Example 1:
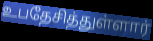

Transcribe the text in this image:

உபதேசித்துள்ளார்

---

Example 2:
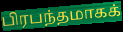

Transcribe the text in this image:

பிரபந்தமாகக்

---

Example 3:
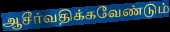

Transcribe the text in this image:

ஆசீர்வதிக்கவேண்டும்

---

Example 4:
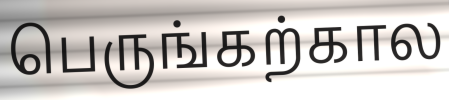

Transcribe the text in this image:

பெருங்கற்கால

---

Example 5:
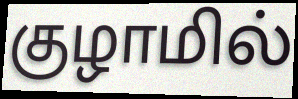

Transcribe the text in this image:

குழாமில்